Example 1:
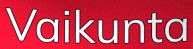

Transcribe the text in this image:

Vaikunta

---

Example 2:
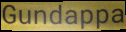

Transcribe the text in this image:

Gundappa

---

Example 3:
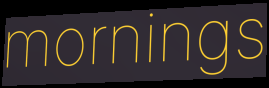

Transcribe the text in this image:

mornings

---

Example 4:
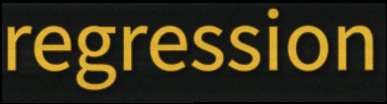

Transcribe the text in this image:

regression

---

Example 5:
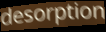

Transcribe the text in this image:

desorption